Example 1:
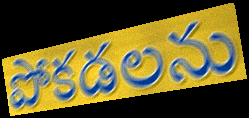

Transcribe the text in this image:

పోకడలను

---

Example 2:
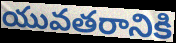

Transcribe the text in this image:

యువతరానికి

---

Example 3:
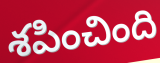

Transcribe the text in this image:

శపించింది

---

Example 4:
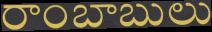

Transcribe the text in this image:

రాంబాబులు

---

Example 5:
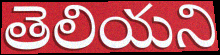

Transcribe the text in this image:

తెలియని